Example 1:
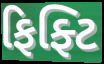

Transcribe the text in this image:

ફિફ્ટિ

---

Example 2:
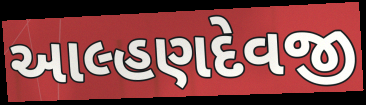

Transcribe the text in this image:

આલ્હણદેવજી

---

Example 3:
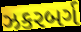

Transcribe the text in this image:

ઝકરબર્ગ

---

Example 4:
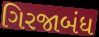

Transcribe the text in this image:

ગિરજાબંધ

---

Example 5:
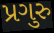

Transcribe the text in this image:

પ્રગુરુ